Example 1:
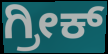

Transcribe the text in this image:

ಗ್ರೀಕ್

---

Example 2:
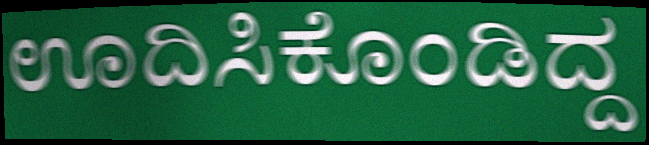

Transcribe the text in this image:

ಊದಿಸಿಕೊಂಡಿದ್ದ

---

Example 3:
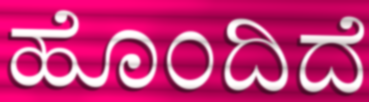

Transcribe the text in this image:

ಹೊಂದಿದೆ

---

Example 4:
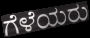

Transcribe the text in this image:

ಗೆಳೆಯರು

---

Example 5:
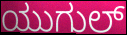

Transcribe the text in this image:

ಯುಗುಲ್